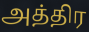
அத்திர